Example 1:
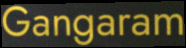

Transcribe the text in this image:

Gangaram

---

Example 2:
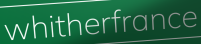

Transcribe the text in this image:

whitherfrance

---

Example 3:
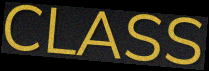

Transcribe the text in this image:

CLASS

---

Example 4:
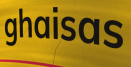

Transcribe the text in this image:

ghaisas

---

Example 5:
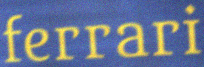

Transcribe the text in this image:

ferrari